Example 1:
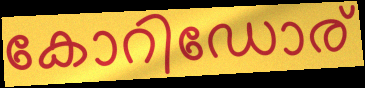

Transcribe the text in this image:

കോറിഡോര്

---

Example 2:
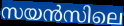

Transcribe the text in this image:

സയൻസിലെ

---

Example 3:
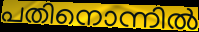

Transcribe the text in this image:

പതിനൊന്നിൽ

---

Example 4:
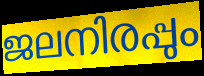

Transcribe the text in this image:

ജലനിരപ്പും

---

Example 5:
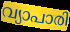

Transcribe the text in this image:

വ്യാപാരി